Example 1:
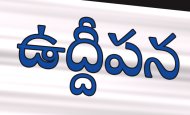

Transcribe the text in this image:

ఉద్దీపన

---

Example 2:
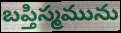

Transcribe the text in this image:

బప్తిస్మమును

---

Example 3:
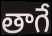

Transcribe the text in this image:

తాగే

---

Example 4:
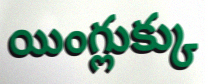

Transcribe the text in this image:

యింగ్లుక్కు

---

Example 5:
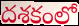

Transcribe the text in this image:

దశకంలో